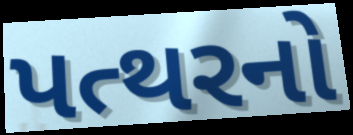
પત્થરનો